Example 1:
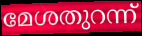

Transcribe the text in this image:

മേശതുറന്ന്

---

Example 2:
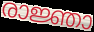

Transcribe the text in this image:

രാജ്ഞാ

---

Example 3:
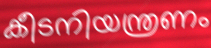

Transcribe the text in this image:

കീടനിയന്ത്രണം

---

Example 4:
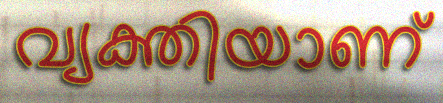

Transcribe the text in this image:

വ്യക്തിയാണ്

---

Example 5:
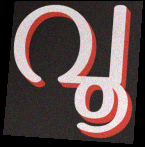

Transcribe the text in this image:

വൂ